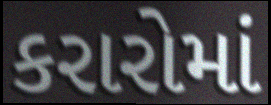
કરારોમાં